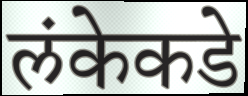
लंकेकडे